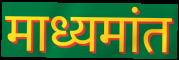
माध्यमांत